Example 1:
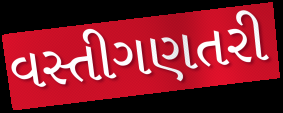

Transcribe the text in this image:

વસ્તીગણતરી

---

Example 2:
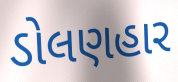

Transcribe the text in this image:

ડોલણહાર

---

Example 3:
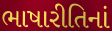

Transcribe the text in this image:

ભાષારીતિનાં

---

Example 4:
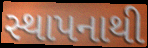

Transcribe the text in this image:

સ્થાપનાથી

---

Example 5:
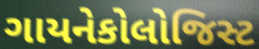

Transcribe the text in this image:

ગાયનેકોલોજિસ્ટ